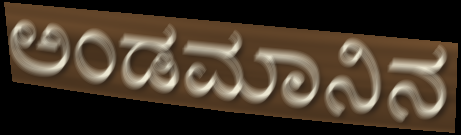
ಅಂಡಮಾನಿನ